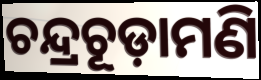
ଚନ୍ଦ୍ରଚୂଡ଼ାମଣି